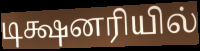
டிக்ஷனரியில்